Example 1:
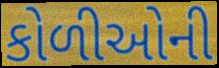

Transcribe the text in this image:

કોળીઓની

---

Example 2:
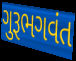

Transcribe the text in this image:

ગુરૂભગવંત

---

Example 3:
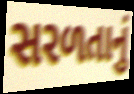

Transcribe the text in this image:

સરળતાનું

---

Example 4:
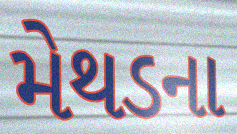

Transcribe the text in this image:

મેથડના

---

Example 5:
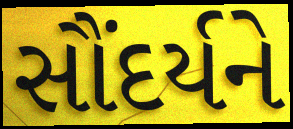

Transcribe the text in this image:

સૌંદર્યને